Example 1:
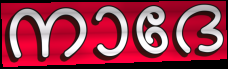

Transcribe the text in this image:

നാദേ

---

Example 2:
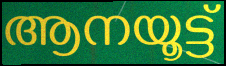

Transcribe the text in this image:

ആനയൂട്ട്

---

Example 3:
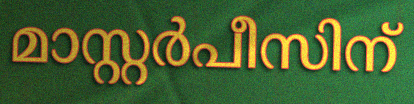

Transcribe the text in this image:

മാസ്റ്റർപീസിന്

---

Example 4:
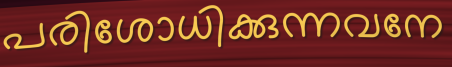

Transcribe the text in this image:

പരിശോധിക്കുന്നവനേ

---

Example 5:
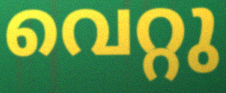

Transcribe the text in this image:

വെറ്റു